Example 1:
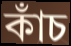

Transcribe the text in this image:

কাঁচ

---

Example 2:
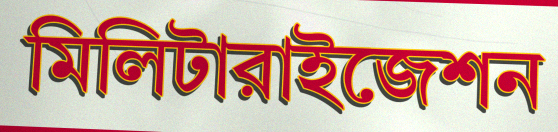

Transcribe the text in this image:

মিলিটারাইজেশন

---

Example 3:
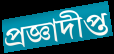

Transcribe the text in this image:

প্রজ্ঞাদীপ্ত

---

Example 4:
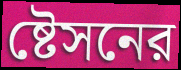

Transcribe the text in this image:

ষ্টেসনের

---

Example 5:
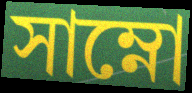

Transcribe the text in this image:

সাম্নো